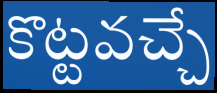
కొట్టవచ్చే